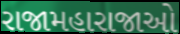
રાજામહારાજાઓ